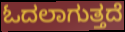
ಓದಲಾಗುತ್ತದೆ